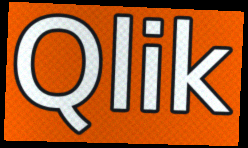
Qlik